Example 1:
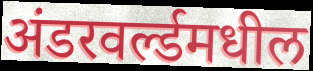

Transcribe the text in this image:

अंडरवर्ल्डमधील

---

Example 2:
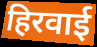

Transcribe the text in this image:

हिरवाई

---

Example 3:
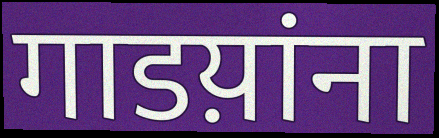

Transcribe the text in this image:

गाडय़ांना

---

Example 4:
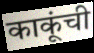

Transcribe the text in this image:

काकूंची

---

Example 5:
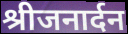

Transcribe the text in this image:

श्रीजनार्दन